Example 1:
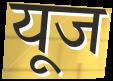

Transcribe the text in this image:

यूज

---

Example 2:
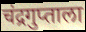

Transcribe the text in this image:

चंद्रगुप्ताला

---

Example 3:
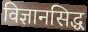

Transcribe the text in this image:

विज्ञानसिद्ध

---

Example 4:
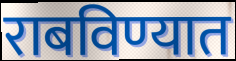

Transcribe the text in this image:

राबविण्‍यात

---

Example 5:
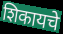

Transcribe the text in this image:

शिकायचे